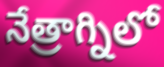
నేత్రాగ్నిలో